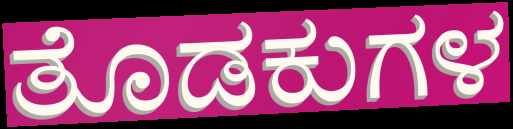
ತೊಡಕುಗಳ